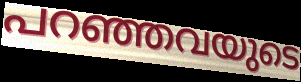
പറഞ്ഞവയുടെ